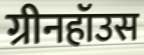
ग्रीनहॉउस